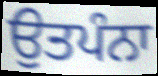
ਉਤਪੰਨਾ